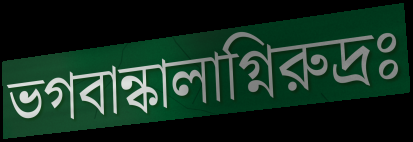
ভগবান্কালাগ্নিরুদ্রঃ